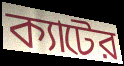
ক্যাটের